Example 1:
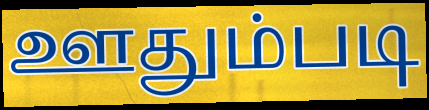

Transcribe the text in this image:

ஊதும்படி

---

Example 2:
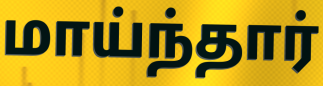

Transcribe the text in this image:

மாய்ந்தார்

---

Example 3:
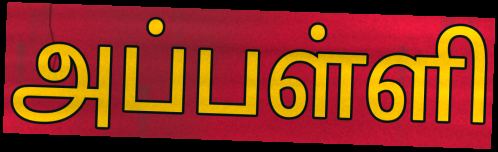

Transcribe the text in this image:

அப்பள்ளி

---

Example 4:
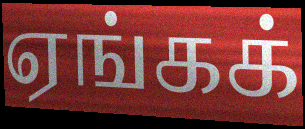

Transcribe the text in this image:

ஏங்கக்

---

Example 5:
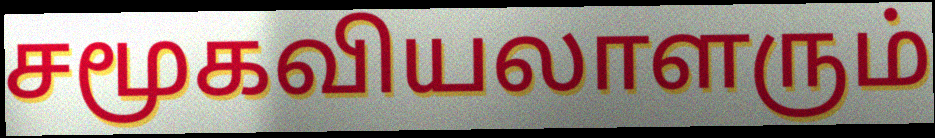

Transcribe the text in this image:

சமூகவியலாளரும்